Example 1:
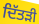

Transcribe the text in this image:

ਦਿੱਤੜੀ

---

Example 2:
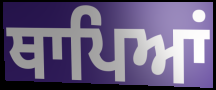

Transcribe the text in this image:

ਥਾਪਿਆਂ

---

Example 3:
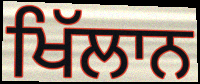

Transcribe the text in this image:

ਖਿੱਲਾਨ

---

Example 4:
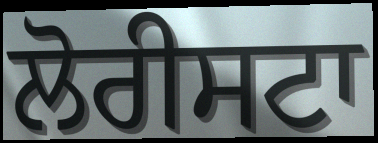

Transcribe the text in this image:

ਲੋਰੀਸਟਾ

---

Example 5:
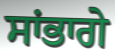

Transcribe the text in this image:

ਸਾਂਭਾਗੇ